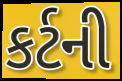
કર્ટની